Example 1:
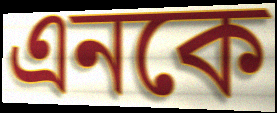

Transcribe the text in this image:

এনকে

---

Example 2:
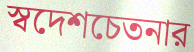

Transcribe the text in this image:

স্বদেশচেতনার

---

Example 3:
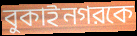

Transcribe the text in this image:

বুকাইনগরকে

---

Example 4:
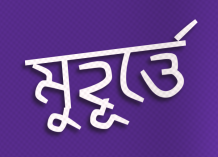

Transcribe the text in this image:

মুহূর্ত্তে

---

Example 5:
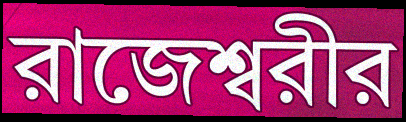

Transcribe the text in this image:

রাজেশ্বরীর